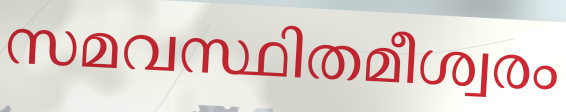
സമവസ്ഥിതമീശ്വരം